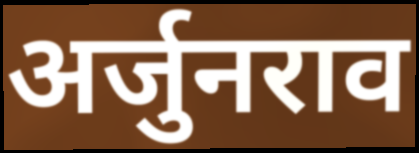
अर्जुनराव